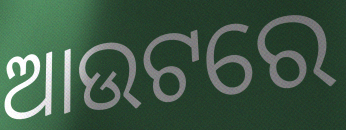
ଆଉଟରେ